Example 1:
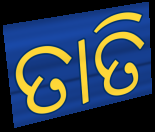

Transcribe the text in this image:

ତାତି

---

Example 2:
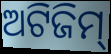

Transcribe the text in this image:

ଅଟିଜିମ୍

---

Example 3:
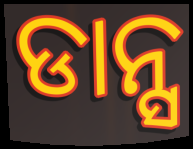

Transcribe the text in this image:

ଡାନ୍ସ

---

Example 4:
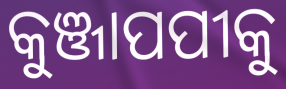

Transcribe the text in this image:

କୁଞ୍ଜାପପୀକୁ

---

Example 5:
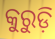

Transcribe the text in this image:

କୁରୁଡ଼ି